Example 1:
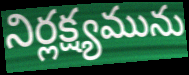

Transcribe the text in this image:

నిర్లక్ష్యమును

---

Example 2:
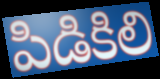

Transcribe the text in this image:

పిడికిలి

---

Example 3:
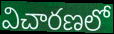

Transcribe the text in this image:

విచారణలో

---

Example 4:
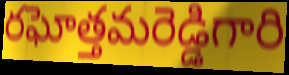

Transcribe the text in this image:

రఘోత్తమరెడ్డిగారి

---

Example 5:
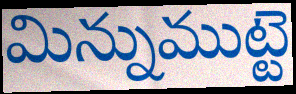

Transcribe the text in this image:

మిన్నుముట్టె